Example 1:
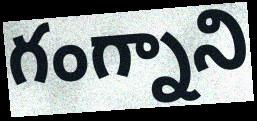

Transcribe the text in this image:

గంగ్నాని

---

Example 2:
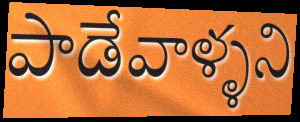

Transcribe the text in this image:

పాడేవాళ్ళని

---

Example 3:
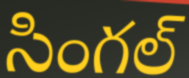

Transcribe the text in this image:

సింగల్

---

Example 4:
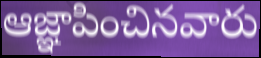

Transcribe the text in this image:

ఆజ్ఞాపించినవారు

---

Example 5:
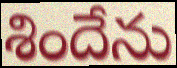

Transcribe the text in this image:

శిందేను